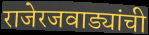
राजेरजवाड्यांची